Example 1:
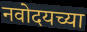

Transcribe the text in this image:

नवोदयच्या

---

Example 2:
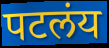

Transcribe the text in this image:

पटलंय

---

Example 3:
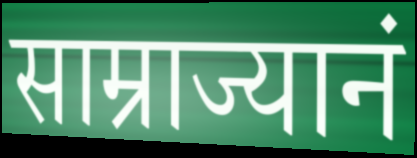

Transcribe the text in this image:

साम्राज्यानं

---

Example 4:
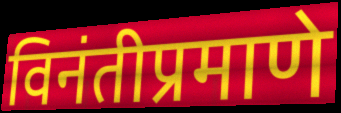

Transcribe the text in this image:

विनंतीप्रमाणे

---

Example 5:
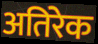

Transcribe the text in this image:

अतिरेक